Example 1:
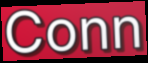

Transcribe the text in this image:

Conn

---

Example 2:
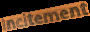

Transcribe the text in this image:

Incitement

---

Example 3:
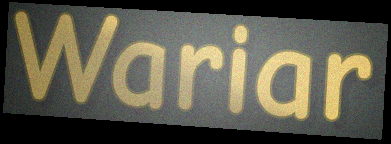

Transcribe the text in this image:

Wariar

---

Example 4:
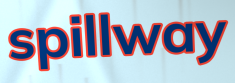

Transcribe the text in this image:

spillway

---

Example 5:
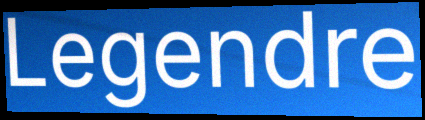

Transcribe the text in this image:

Legendre